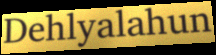
Dehlyalahun